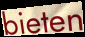
bieten